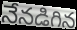
నేనడిగిన